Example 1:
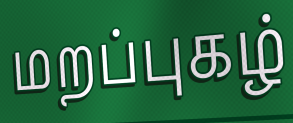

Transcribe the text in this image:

மறப்புகழ்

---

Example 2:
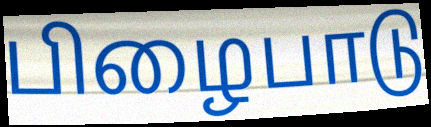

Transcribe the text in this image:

பிழைபாடு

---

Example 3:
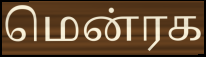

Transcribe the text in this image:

மென்ரக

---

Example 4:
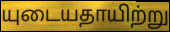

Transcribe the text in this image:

யுடையதாயிற்று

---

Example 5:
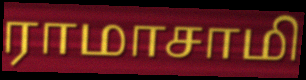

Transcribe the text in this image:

ராமாசாமி